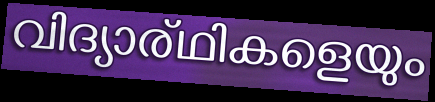
വിദ്യാര്ഥികളെയും